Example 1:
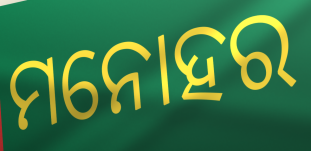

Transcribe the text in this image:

ମନୋହର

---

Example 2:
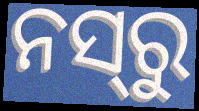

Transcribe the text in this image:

ନସ୍‍ରୁ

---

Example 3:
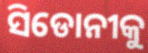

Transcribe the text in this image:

ସିଡୋନୀକୁ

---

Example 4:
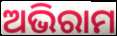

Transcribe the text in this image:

ଅଭିରାମ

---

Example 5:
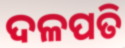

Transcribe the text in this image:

ଦଳପତି